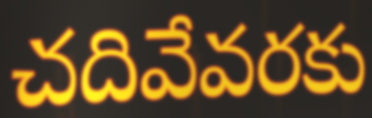
చదివేవరకు